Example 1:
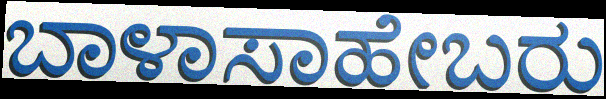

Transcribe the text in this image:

ಬಾಳಾಸಾಹೇಬರು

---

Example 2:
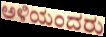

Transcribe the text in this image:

ಅಳಿಯಂದರು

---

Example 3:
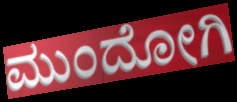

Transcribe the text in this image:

ಮುಂದೋಗಿ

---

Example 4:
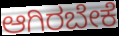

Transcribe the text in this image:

ಆಗಿರಬೇಕೆ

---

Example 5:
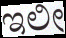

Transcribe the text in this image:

ಇಲೀ